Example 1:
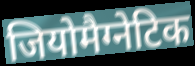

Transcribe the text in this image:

जियोमैग्नेटिक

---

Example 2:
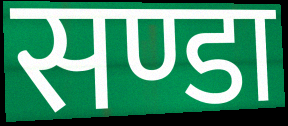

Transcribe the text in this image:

सण्डा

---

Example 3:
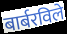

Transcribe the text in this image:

बार्बरविले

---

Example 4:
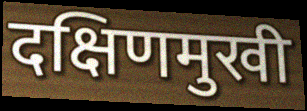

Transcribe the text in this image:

दक्षिणमुखी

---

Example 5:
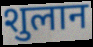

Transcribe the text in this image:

शुलान